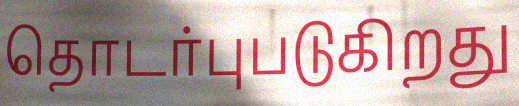
தொடர்புபடுகிறது